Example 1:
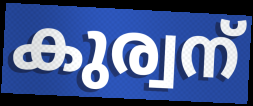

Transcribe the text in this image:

കുര്വന്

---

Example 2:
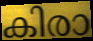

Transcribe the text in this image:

കിരാ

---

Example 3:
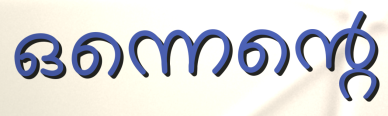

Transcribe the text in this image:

ഒന്നെന്റെ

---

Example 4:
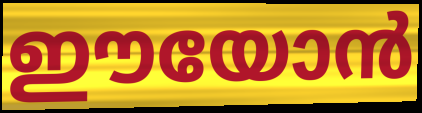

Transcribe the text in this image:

ഈയോൻ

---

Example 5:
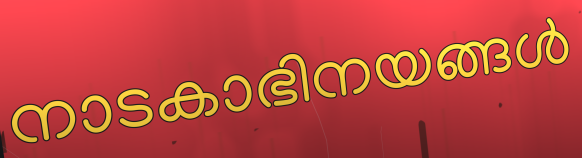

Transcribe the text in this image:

നാടകാഭിനയങ്ങൾ